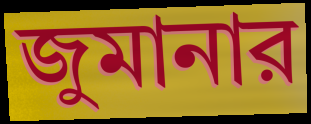
জুমানার